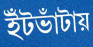
ইঁটভাঁটায়